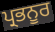
ਪ੍ਰਭਨੂਰ